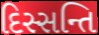
દિસ્સન્તિ